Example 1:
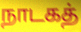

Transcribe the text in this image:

நாடகத்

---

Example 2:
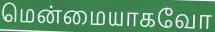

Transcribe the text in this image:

மென்மையாகவோ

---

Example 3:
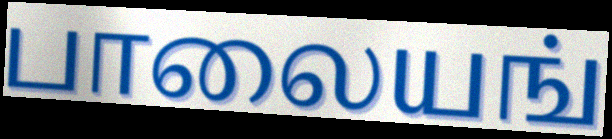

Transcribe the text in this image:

பாலையங்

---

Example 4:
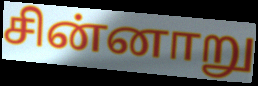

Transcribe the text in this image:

சின்னாறு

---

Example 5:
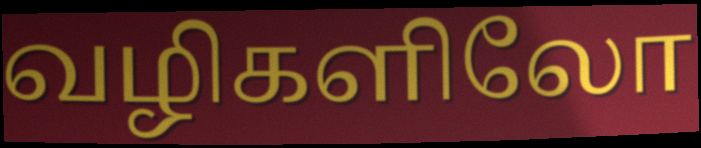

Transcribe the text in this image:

வழிகளிலோ